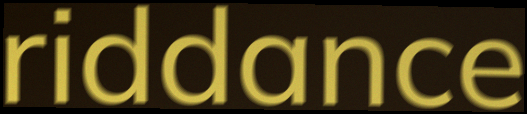
riddance